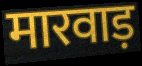
मारवाड़